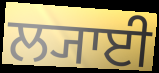
ਲ੍ਯਾਈ